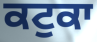
ਕਟੁਕਾ